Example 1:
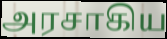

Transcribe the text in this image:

அரசாகிய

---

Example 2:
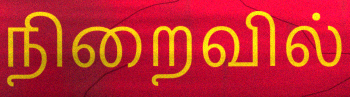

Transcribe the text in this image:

நிறைவில்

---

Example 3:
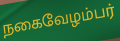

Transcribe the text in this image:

நகைவேழம்பர்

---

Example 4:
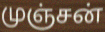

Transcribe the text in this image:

முஞ்சன்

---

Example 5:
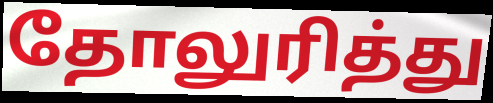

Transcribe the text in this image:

தோலுரித்து